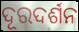
ଦୂରଦର୍ଶନ